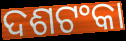
ଦଶଟଂକା